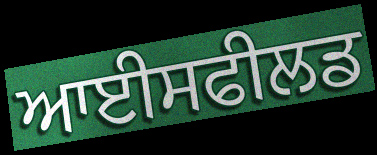
ਆਈਸਫੀਲਡ